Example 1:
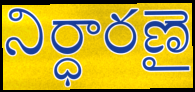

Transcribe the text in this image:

నిర్ధారణై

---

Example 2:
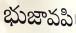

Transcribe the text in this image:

భుజావపి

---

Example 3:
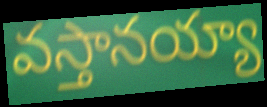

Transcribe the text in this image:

వస్తానయ్యా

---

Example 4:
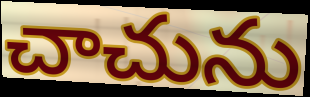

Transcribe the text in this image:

చాచును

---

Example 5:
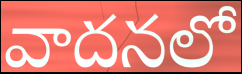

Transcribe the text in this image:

వాదనలో